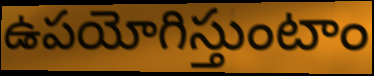
ఉపయోగిస్తుంటాం